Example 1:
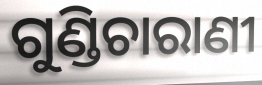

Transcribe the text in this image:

ଗୁଣ୍ଡିଚାରାଣୀ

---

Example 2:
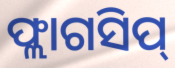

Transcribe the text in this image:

ଫ୍ଲାଗସିପ୍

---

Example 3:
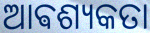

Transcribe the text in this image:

ଆଵଶ୍ୟକତା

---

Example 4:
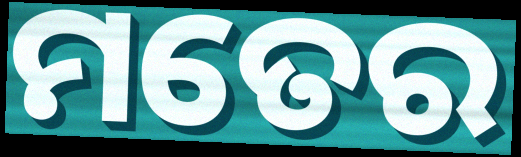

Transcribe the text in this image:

ମତେର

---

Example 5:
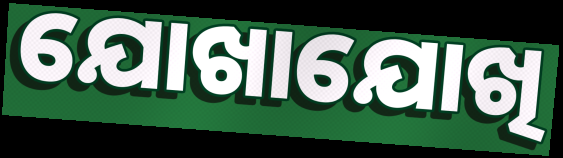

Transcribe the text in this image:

ଯୋଖାଯୋଖି